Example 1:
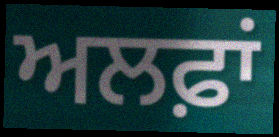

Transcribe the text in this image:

ਅਲਫ਼ਾਂ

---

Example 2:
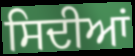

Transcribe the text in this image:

ਸਿਦੀਆਂ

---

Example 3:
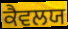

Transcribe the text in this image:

ਕੈਵਲਯ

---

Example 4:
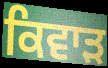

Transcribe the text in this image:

ਕਿਵਾੜ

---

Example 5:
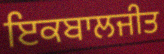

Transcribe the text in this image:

ਇਕਬਾਲਜੀਤ